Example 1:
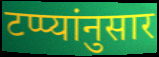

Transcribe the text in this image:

टप्प्यांनुसार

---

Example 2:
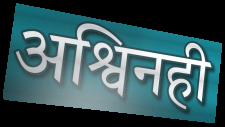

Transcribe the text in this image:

अश्विनही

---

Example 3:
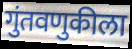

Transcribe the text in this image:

गुंतवणुकीला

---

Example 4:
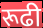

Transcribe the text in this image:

रूढी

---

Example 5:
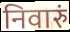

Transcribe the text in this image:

निवारुं